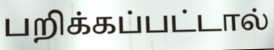
பறிக்கப்பட்டால்